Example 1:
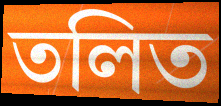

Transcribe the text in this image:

তলিত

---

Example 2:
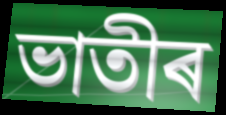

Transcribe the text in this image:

ভাতীৰ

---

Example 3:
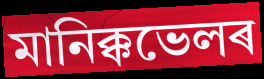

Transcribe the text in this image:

মানিক্কভেলৰ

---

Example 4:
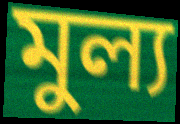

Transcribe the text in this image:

মুল্য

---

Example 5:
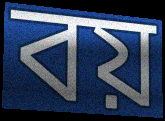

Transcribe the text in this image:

বয়